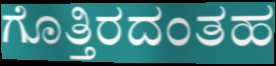
ಗೊತ್ತಿರದಂತಹ